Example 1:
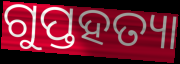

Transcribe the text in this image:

ଗୁପ୍ତହତ୍ୟା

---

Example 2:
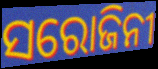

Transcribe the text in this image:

ସରୋଜିନୀ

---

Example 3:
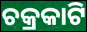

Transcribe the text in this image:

ଚକ୍ରକାଟି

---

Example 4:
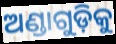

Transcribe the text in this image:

ଅଣ୍ଡାଗୁଡ଼ିକୁ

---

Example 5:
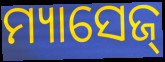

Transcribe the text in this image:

ମ୍ୟାସେଜ୍